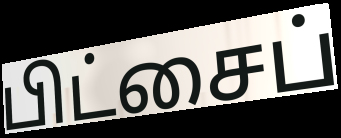
பிட்சைப்